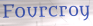
Fourcroy